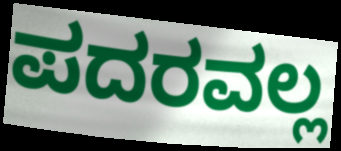
ಪದರವಲ್ಲ